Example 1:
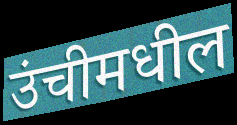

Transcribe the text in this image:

उंचीमधील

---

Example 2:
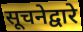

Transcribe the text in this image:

सूचनेद्वारे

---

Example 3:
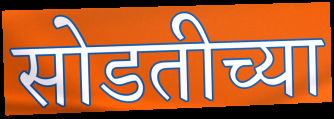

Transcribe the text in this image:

सोडतीच्या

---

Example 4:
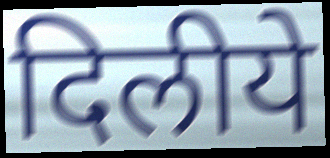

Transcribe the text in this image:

दिलीये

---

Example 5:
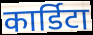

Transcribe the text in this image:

कार्डिटा